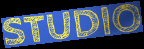
STUDIO